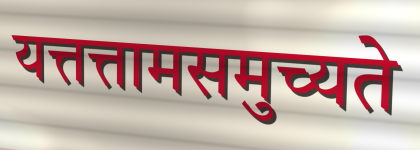
यत्तत्तामसमुच्यते